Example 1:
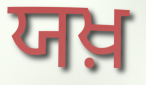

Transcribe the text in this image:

ਯਖ਼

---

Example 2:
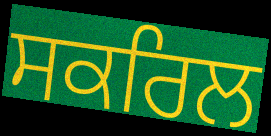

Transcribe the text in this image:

ਸਕਰਿਲ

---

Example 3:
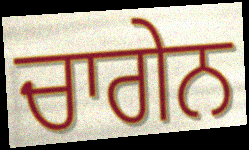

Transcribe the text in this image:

ਚਾਗੇਨ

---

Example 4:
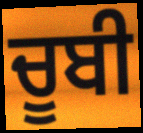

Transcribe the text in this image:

ਚੂਬੀ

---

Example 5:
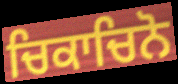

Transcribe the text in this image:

ਚਿਕਾਚਿਨੋ